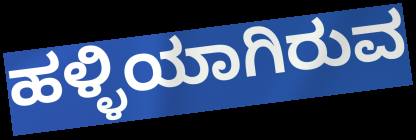
ಹಳ್ಳಿಯಾಗಿರುವ